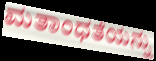
ಮತಾಂಧತೆಯನ್ನು